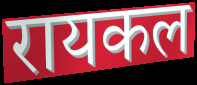
रायकल